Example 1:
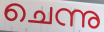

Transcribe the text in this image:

ചെന്നു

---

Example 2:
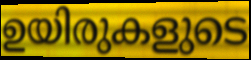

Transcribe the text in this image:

ഉയിരുകളുടെ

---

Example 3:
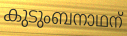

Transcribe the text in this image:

കുടുംബനാഥന്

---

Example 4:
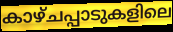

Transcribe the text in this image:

കാഴ്ചപ്പാടുകളിലെ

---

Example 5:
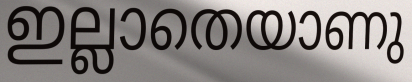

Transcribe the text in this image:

ഇല്ലാതെയാണു